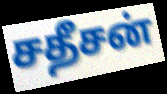
சதீசன்